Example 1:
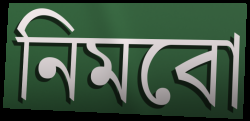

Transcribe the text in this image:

নিমবো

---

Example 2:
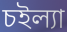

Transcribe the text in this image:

চইল্যা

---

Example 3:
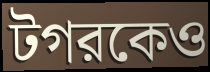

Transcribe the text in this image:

টগরকেও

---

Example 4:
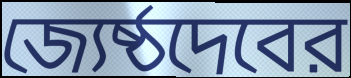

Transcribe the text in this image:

জ্যেষ্ঠদেবের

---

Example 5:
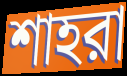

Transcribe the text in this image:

শাহরা